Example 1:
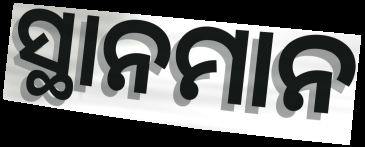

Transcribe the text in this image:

ସ୍ଥାନମାନ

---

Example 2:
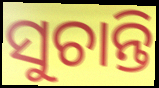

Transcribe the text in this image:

ସୁଚାନ୍ତି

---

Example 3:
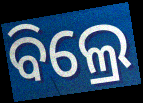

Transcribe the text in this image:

ବିଲ୍ରେ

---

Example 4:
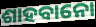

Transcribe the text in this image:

ଶାହବାନୋ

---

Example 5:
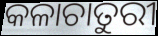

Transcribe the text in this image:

କଳାଚାତୁରୀ